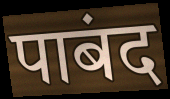
पाबंद